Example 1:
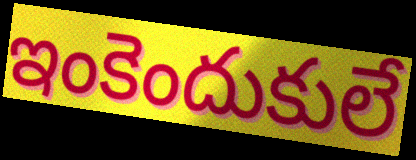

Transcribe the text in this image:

ఇంకెందుకులే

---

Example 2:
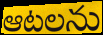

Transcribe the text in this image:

ఆటలను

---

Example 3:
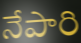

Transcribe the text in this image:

నేపారి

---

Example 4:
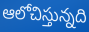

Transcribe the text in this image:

ఆలోచిస్తున్నది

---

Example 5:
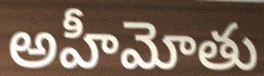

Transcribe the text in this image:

అహీమోతు